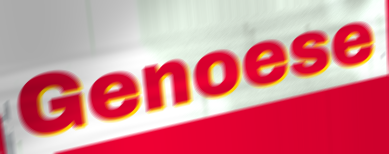
Genoese